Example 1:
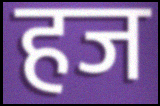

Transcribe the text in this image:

हज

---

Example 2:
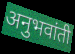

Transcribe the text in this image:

अनुभवांती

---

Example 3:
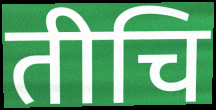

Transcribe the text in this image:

तीचि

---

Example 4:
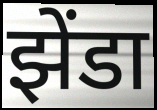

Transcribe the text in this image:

झेंडा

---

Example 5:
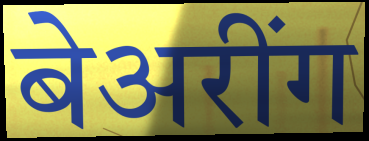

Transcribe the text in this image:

बेअरींग